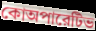
কোঅপারেটিভ